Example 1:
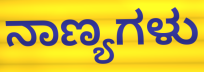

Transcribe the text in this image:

ನಾಣ್ಯಗಳು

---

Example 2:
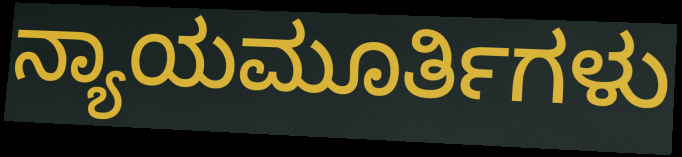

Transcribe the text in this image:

ನ್ಯಾಯಮೂರ್ತಿಗಳು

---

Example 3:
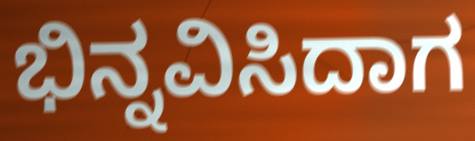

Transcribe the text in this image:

ಭಿನ್ನವಿಸಿದಾಗ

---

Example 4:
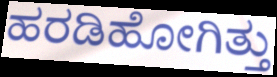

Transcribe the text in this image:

ಹರಡಿಹೋಗಿತ್ತು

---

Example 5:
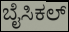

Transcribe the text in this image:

ಬೈಸಿಕಲ್